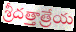
శ్రీదత్తాత్రేయ